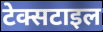
टेक्सटाइल